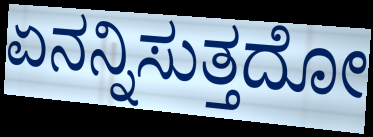
ಏನನ್ನಿಸುತ್ತದೋ